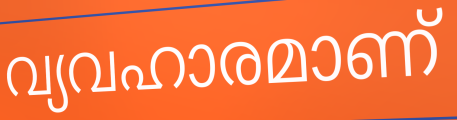
വ്യവഹാരമാണ്